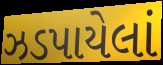
ઝડપાયેલાં